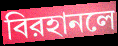
বিরহানলে